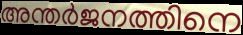
അന്തർജനത്തിനെ